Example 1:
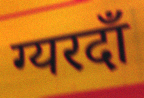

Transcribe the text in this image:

ग्यरदाँ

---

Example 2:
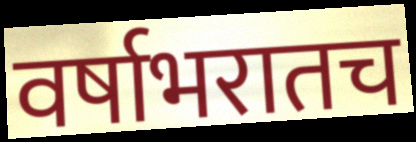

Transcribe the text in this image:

वर्षाभरातच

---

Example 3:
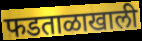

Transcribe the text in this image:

फडताळाखाली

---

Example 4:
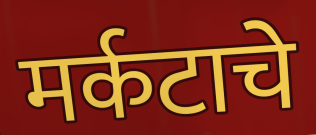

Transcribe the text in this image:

मर्कटाचे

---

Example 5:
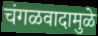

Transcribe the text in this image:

चंगळवादामुळे